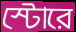
স্টোরে